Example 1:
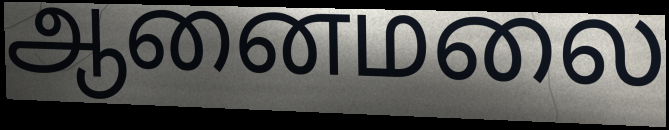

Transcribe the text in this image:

ஆனைமலை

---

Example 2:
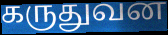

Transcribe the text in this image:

கருதுவன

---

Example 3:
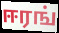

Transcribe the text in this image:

ஈரங்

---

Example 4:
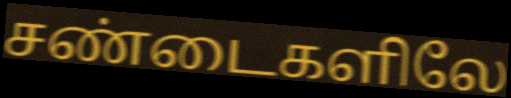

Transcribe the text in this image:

சண்டைகளிலே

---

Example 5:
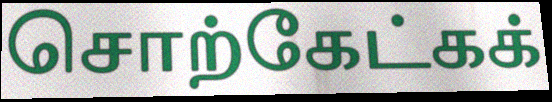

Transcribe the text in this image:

சொற்கேட்கக்